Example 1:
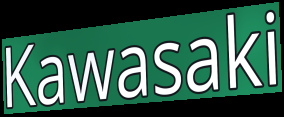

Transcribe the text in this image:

Kawasaki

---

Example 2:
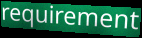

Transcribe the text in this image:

requirement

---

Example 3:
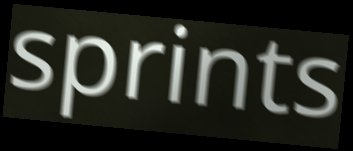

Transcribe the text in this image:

sprints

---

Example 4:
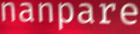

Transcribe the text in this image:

nanpare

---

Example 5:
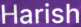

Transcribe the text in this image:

Harish